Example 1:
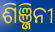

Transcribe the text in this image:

ଶିଞ୍ଜିନୀ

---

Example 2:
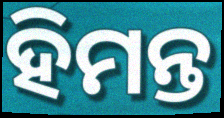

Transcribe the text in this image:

ହିମନ୍ତ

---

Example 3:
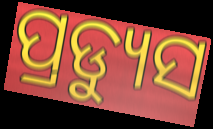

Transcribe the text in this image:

ପ୍ରଡ୍ୟୁସ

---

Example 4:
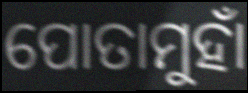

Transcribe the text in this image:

ପୋତାମୁହାଁ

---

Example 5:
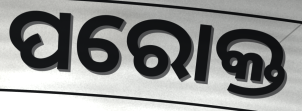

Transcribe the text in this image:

ପରୋକ୍ତ